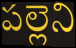
పల్లెని